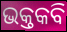
ଭକ୍ତକବି